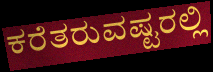
ಕರೆತರುವಷ್ಟರಲ್ಲಿ